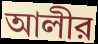
আলীর